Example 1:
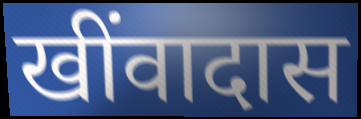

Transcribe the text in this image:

खींवादास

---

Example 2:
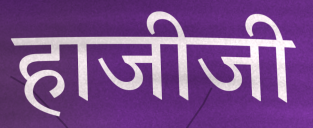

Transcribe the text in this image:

हाजीजी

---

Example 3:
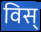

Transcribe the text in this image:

विस्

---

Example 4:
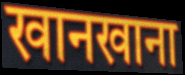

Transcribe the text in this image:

खानखाना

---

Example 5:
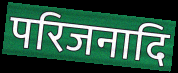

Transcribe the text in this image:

परिजनादि